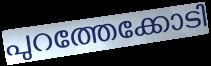
പുറത്തേക്കോടി